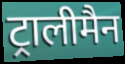
ट्रालीमैन